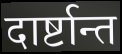
दार्ष्टान्त